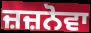
ਜ਼ਜ਼ਨੋਵਾ